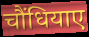
चौंधियाए